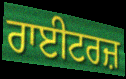
ਰਾਈਟਰਜ਼